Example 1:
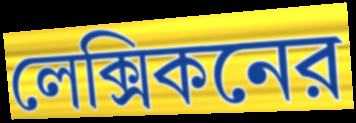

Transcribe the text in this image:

লেক্সিকনের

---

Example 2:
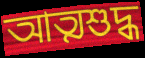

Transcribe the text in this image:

আত্মশুদ্ধ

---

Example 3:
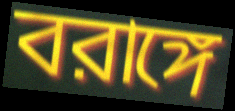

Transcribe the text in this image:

বরাঙ্গে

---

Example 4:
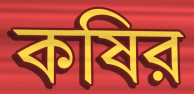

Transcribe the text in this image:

কষির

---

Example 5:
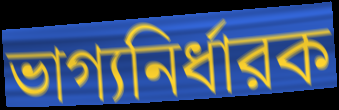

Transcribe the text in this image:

ভাগ্যনির্ধারক